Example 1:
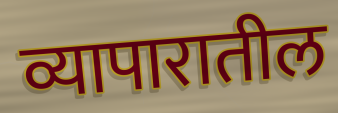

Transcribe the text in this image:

व्यापारातील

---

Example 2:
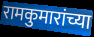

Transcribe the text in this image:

रामकुमारांच्या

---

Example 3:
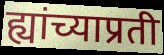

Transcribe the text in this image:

ह्यांच्याप्रती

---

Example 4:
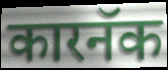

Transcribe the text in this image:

कारनॅक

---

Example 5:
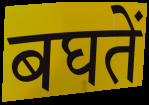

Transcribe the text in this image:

बघतें